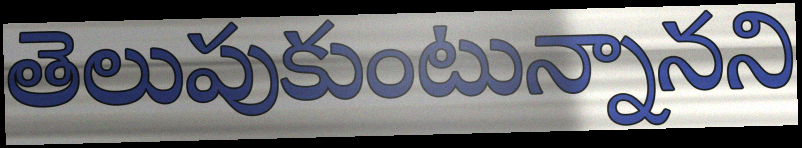
తెలుపుకుంటున్నానని